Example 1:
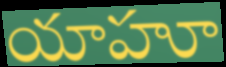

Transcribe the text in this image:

యాహూ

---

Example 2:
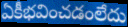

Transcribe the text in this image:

ఏకీభవించడంలేదు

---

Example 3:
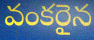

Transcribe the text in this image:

వంకరైన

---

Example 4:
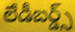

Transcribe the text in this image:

లేడీబర్డ్స్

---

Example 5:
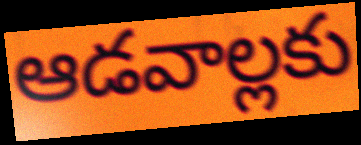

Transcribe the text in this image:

ఆడవాల్లకు